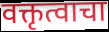
वक्तृत्वाचा